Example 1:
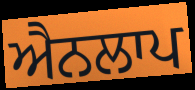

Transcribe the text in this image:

ਐਨਲਾਪ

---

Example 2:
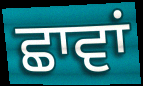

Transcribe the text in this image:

ਛਾਵਾਂ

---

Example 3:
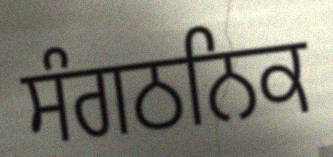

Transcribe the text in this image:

ਸੰਗਠਨਿਕ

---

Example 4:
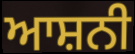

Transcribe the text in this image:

ਆਸ਼ਨੀ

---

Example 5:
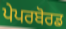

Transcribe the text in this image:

ਪੇਪਰਬੋਰਡ